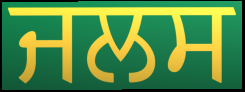
ਜਲਸ